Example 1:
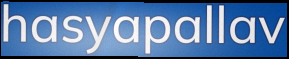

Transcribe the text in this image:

hasyapallav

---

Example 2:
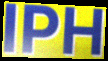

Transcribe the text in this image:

IPH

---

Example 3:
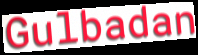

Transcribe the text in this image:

Gulbadan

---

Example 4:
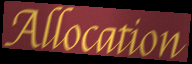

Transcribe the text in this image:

Allocation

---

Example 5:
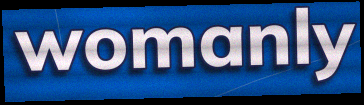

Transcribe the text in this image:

womanly